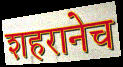
शहरानेच